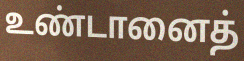
உண்டானைத்